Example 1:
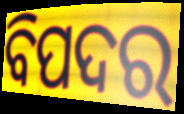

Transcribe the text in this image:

ବିପଦର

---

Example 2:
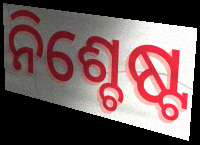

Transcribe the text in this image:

ନିଶ୍ଚେଷ୍ଟ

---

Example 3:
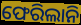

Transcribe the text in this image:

ଫେରିଲାନି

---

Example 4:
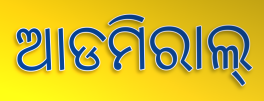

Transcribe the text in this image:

ଆଡମିରାଲ୍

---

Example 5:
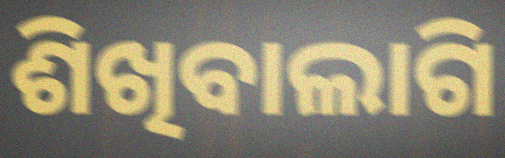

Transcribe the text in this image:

ଶିଖିବାଲାଗି